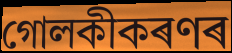
গোলকীকৰণৰ